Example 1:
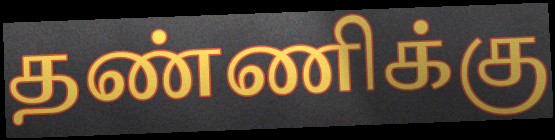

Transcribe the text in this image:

தண்ணிக்கு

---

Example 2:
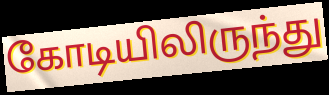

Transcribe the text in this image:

கோடியிலிருந்து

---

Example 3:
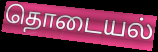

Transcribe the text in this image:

தொடையல்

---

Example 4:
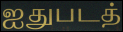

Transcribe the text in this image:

ஐதுபடத்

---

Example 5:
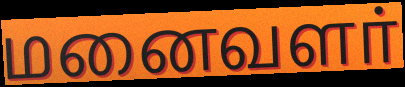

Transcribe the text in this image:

மனைவளர்